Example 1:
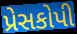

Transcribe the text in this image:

પ્રેસકોપી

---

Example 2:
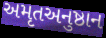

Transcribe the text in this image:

અમૃતઅનુષ્ઠાન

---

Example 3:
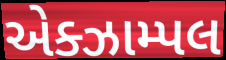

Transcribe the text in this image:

એક્ઝામ્પલ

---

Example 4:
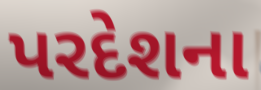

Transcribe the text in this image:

પરદેશના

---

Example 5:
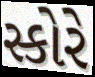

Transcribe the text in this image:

સ્કોરે